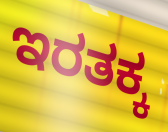
ಇರತಕ್ಕ